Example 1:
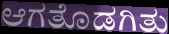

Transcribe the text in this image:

ಆಗತೊಡಗಿತು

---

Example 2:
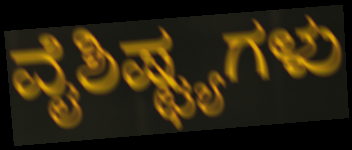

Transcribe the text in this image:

ವೈಶಿಷ್ಟ್ಯಗಳು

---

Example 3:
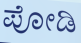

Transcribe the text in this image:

ಪೋಡಿ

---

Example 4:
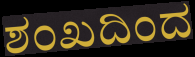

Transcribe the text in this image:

ಶಂಖದಿಂದ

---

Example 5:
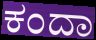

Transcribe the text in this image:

ಕಂದಾ